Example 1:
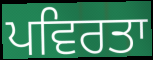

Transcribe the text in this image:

ਪਵਿਰਤਾ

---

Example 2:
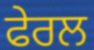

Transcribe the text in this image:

ਫੇਰਲ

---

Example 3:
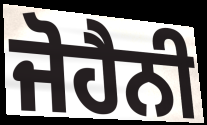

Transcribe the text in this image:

ਜੋਹੈਨੀ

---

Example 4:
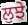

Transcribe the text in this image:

ਲੁਝੇ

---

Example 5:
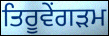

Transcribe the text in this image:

ਤਿਰੂਵੇਂਗੜਮ